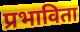
प्रभाविता